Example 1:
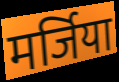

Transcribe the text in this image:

मर्जिया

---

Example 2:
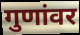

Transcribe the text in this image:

गुणांवर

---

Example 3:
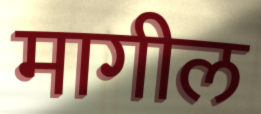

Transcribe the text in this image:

मागील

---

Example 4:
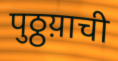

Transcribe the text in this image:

पुठ्ठय़ाची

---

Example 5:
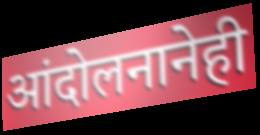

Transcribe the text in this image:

आंदोलनानेही